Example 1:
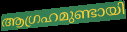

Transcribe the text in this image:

ആഗ്രഹമുണ്ടായി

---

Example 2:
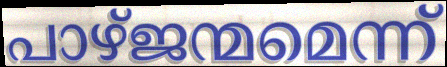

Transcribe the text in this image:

പാഴ്ജന്മമെന്ന്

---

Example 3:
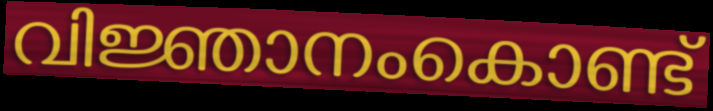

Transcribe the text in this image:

വിജ്ഞാനംകൊണ്ട്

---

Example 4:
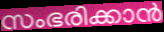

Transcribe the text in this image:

സംഭരിക്കാൻ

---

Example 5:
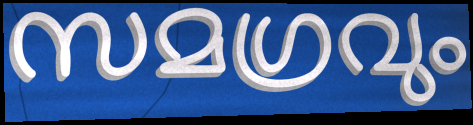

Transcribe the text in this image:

സമഗ്രവും